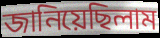
জানিয়েছিলাম